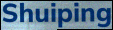
Shuiping